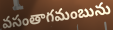
వసంతాగమంబును